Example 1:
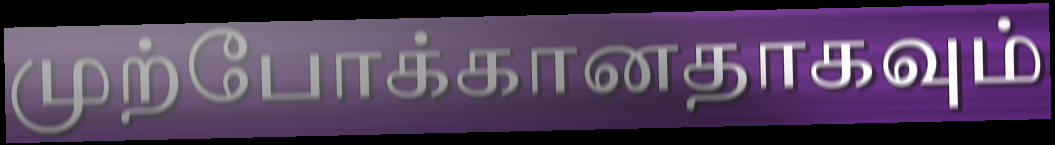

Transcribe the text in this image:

முற்போக்கானதாகவும்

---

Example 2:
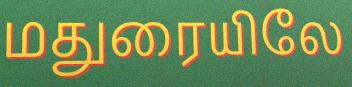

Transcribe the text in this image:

மதுரையிலே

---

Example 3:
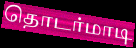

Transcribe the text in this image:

தொடர்மாடி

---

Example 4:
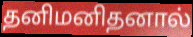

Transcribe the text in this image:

தனிமனிதனால்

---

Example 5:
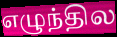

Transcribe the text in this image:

எழுந்தில